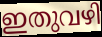
ഇതുവഴി